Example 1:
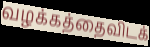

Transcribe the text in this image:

வழக்கத்தைவிடக்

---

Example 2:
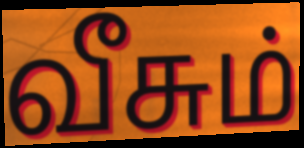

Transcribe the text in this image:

வீசும்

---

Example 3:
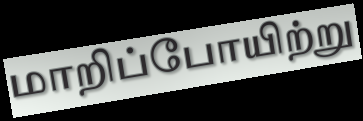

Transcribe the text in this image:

மாறிப்போயிற்று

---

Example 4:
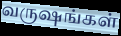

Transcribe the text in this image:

வருஷங்கள்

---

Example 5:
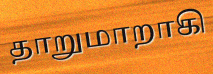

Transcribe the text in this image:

தாறுமாறாகி